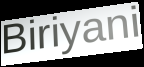
Biriyani